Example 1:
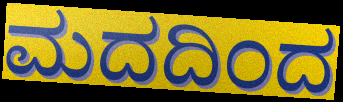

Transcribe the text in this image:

ಮದದಿಂದ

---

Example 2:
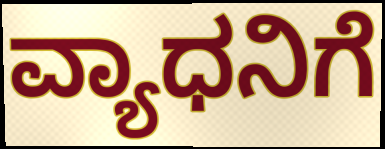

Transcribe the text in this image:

ವ್ಯಾಧನಿಗೆ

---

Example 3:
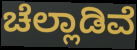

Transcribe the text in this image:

ಚೆಲ್ಲಾಡಿವೆ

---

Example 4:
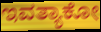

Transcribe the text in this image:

ಇವತ್ಯಾಕೋ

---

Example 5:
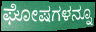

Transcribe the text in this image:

ಘೋಷಗಳನ್ನೂ